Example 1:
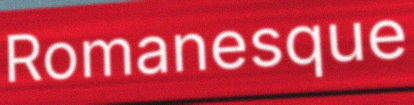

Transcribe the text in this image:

Romanesque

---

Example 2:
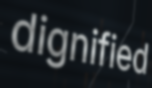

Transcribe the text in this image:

dignified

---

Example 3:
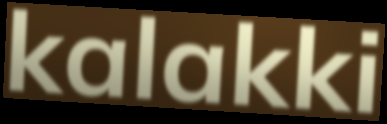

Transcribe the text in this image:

kalakki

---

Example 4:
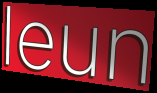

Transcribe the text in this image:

leun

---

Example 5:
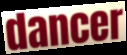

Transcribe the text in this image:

dancer